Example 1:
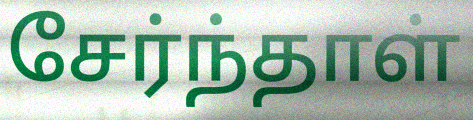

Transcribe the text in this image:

சேர்ந்தாள்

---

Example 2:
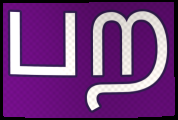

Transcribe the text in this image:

பற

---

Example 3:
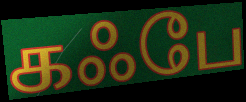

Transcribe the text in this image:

கஃபே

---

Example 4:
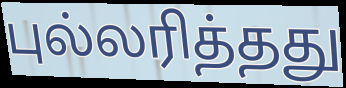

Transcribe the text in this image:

புல்லரித்தது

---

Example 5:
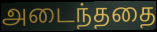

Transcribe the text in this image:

அடைந்ததை